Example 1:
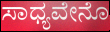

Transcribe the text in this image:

ಸಾಧ್ಯವೇನೊ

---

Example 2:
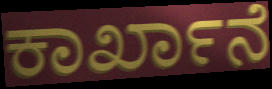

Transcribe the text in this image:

ಕಾರ್ಖಾನೆ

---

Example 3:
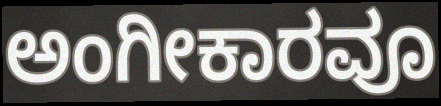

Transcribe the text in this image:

ಅಂಗೀಕಾರವೂ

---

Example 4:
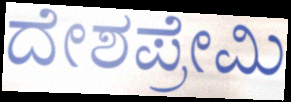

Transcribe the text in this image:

ದೇಶಪ್ರೇಮಿ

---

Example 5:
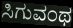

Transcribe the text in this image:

ಸಿಗುವಂಥ